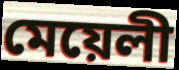
মেয়েলী